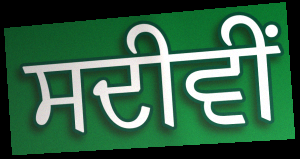
ਸਦੀਵੀਂ